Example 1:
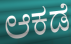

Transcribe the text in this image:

ಆಕಡೆ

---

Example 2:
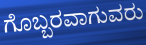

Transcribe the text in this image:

ಗೊಬ್ಬರವಾಗುವರು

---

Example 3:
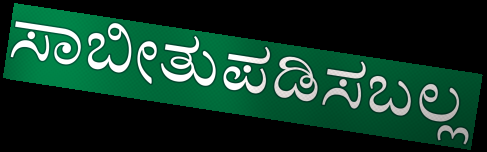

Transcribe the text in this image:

ಸಾಬೀತುಪಡಿಸಬಲ್ಲ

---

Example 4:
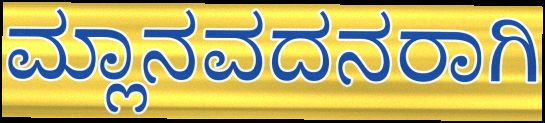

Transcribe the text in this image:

ಮ್ಲಾನವದನರಾಗಿ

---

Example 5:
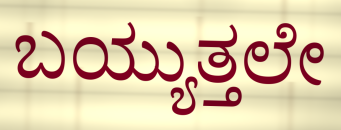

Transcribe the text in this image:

ಬಯ್ಯುತ್ತಲೇ